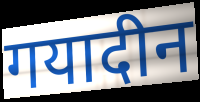
गयादीन